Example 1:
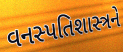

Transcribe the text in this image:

વનસ્પતિશાસ્ત્રને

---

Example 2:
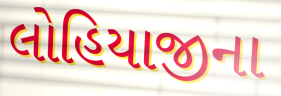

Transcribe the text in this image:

લોહિયાજીના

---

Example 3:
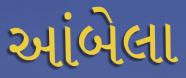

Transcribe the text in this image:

આંબેલા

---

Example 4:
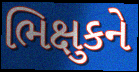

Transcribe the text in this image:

ભિક્ષુકને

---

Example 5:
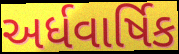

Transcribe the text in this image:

અર્ધવાર્ષિક